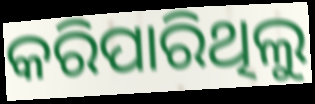
କରିପାରିଥିଲୁ